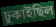
ঢুকাইছিল